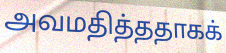
அவமதித்ததாகக்